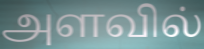
அளவில்